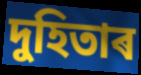
দুহিতাৰ